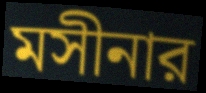
মসীনার